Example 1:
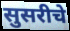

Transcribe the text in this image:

सुसरीचे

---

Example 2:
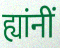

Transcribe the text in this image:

ह्यांनीं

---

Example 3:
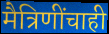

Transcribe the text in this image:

मैत्रिणींचाही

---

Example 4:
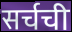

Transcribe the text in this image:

सर्चची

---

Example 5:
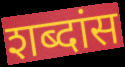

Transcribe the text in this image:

शब्दांस